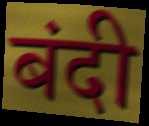
बंदी